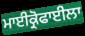
ਮਾਈਕ੍ਰੋਫਾਈਲਾ